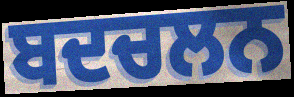
ਬਦਚਲਨ